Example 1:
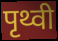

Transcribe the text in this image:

पृथ्‍वी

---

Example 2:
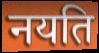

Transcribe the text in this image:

नयति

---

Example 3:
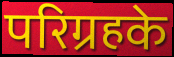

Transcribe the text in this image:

परिग्रहके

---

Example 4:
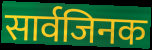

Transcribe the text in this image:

सार्वजिनक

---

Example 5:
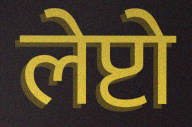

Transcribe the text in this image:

लेप्टो